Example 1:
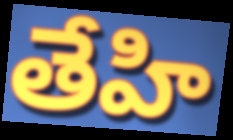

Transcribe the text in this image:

తేహి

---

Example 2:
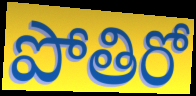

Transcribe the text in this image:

పోతిరో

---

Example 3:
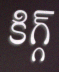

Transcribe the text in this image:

కిగ్గ్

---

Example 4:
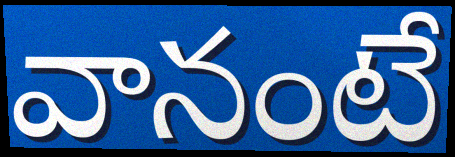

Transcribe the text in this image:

వానంటే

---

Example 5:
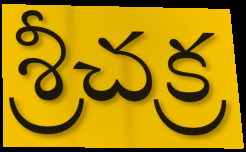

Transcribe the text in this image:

శ్రీచక్ర